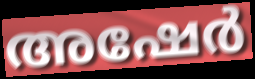
അഷേർ